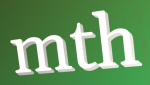
mth